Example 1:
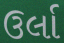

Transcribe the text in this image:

ઉર્લા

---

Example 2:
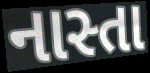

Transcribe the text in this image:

નાસ્તા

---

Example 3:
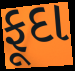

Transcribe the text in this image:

ફૂદા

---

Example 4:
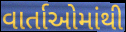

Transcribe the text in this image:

વાર્તાઓમાંથી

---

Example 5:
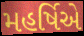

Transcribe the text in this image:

મહર્ષિએ